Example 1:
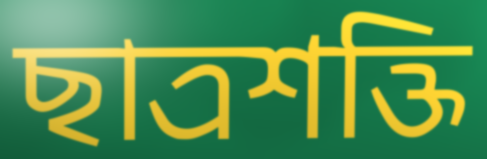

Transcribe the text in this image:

ছাত্ৰশক্তি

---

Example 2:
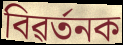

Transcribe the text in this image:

বিৱৰ্তনক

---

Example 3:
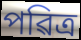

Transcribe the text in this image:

পৱিত্ৰ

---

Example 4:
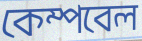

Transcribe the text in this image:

কেম্পবেল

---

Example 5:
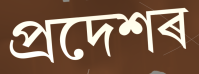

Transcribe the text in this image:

প্ৰদেশৰ